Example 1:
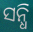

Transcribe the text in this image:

ସନ୍ଧି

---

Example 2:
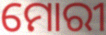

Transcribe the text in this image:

ମୋରୀ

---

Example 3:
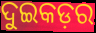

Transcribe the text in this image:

ଦୁଇକଡ଼ର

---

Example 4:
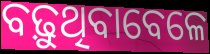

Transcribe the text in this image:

ବଢ଼ୁଥିବାବେଳେ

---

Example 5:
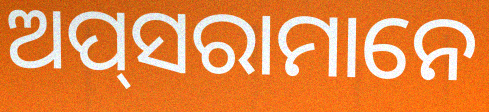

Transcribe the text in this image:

ଅପ୍‍ସରାମାନେ